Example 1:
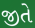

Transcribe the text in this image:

જીતે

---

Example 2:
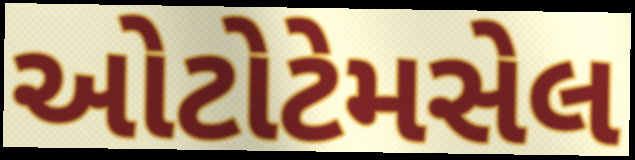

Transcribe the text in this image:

ઓટોટેમસેલ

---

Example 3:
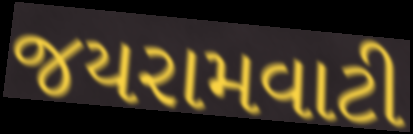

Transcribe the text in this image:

જયરામવાટી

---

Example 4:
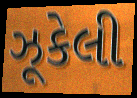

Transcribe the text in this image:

ઝૂકેલી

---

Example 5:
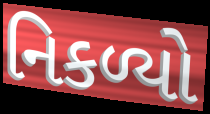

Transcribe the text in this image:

નિકળ્યો